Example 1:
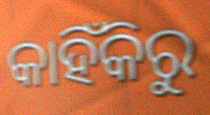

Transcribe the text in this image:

କାହିଁକିରୁ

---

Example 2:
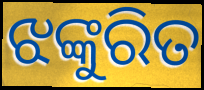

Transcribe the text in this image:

ଝଙ୍କୁରିତ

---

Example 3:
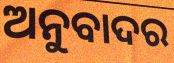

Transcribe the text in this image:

ଅନୁବାଦର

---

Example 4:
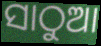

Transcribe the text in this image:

ସାଠୁଆ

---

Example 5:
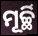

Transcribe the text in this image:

ମୂର୍ଚ୍ଛି